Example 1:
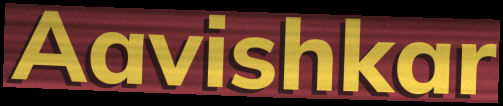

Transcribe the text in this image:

Aavishkar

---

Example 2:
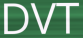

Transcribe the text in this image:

DVT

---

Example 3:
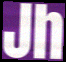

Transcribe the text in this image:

Jh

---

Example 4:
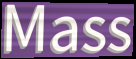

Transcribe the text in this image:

Mass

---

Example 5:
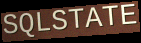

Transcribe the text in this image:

SQLSTATE